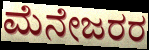
ಮೆನೇಜರರ